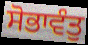
ਸੋਭਾਵੰਤੁ